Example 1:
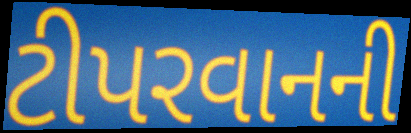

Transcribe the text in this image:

ટીપરવાનની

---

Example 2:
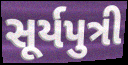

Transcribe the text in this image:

સૂર્યપુત્રી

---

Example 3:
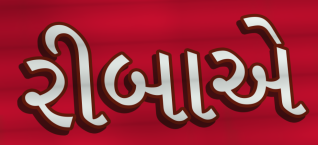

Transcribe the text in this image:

રીબાએ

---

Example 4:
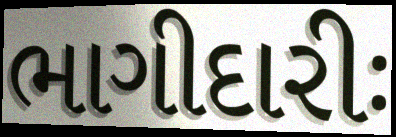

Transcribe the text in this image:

ભાગીદારીઃ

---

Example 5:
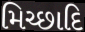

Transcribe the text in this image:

મિચ્છાદિ